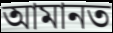
আমানত